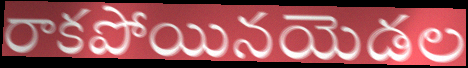
రాకపోయినయెడల